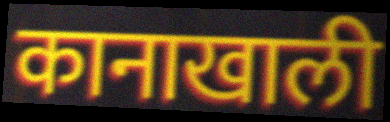
कानाखाली